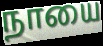
நாயை